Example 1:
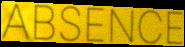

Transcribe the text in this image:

ABSENCE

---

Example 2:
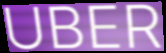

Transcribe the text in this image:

UBER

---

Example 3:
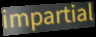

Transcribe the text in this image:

impartial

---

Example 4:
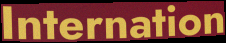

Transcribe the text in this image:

Internation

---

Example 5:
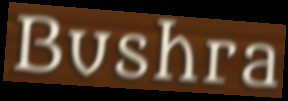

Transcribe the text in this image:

Bushra